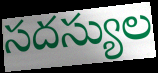
సదస్యుల